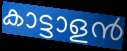
കാട്ടാളൻ